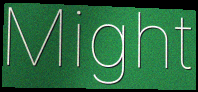
Might